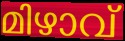
മിഴാവ്